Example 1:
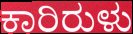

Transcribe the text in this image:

ಕಾರಿರುಳು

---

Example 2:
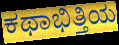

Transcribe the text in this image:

ಕಥಾಭಿತ್ತಿಯ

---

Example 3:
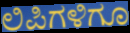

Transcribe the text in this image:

ಲಿಪಿಗಳಿಗೂ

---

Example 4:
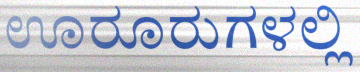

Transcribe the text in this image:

ಊರೂರುಗಳಲ್ಲಿ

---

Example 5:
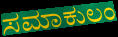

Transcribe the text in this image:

ಸಮಾಕುಲಂ